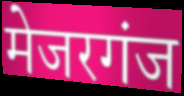
मेजरगंज